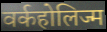
वर्कहोलिज्म